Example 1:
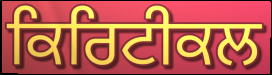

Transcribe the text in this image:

ਕਿਰਿਟੀਕਲ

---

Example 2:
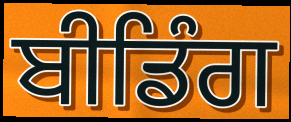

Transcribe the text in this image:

ਬੀਡਿੰਗ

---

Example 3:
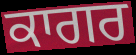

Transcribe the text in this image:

ਕਾਗਰ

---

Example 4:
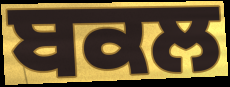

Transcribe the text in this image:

ਬਕਲ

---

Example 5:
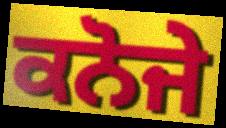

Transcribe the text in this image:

ਕਨੋਜੇ